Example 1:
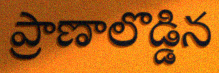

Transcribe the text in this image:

ప్రాణాలొడ్డిన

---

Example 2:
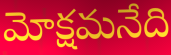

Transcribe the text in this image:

మోక్షమనేది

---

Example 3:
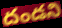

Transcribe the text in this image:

దండని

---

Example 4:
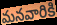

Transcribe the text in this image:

మనవారికి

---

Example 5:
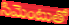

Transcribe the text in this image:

సిమెంటుతో